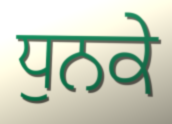
ਧੁਨਕੇ